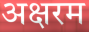
अक्षरम